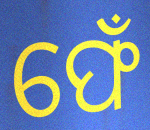
ଫେଁ